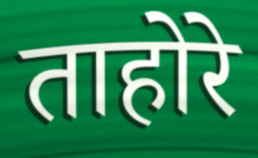
ताहोरे